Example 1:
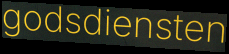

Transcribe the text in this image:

godsdiensten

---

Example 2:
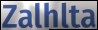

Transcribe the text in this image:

Zalhlta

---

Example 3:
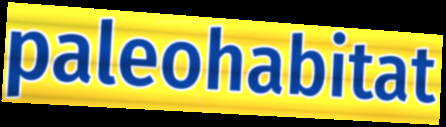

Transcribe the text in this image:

paleohabitat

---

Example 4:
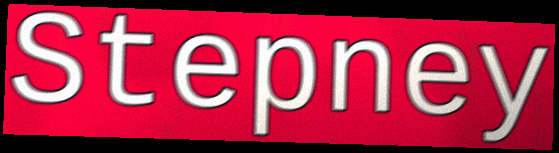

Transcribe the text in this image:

Stepney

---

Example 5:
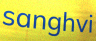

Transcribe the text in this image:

sanghvi